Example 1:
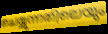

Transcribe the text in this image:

ചെയ്യുന്നതിലെയും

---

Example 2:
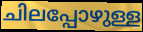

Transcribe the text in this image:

ചിലപ്പോഴുള്ള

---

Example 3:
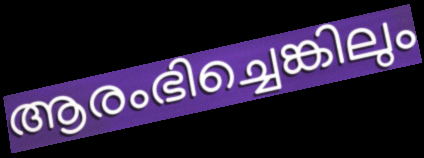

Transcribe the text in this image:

ആരംഭിച്ചെങ്കിലും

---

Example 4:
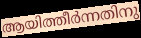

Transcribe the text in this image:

ആയിത്തീർന്നതിനു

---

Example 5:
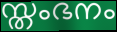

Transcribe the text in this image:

സ്തംഭനം